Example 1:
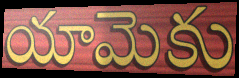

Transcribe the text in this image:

యామెకు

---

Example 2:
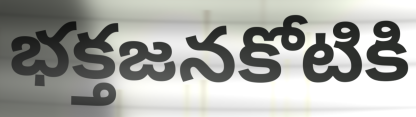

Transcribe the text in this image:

భక్తజనకోటికి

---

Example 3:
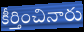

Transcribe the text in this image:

కీర్తించినారు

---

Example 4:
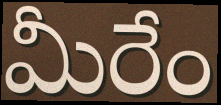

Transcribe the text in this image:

మీరేం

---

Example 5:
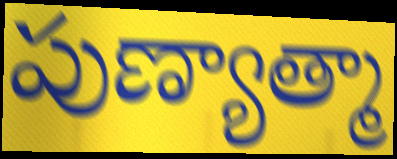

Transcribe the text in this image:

పుణ్యాత్మా